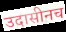
उदासीनच